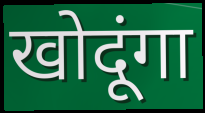
खोदूंगा